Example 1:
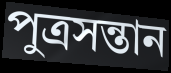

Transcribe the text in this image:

পুত্রসন্তান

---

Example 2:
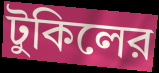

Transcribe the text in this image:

টুকিলের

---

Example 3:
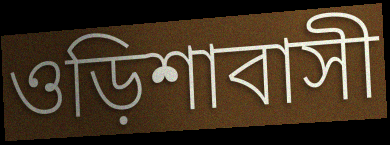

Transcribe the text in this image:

ওড়িশাবাসী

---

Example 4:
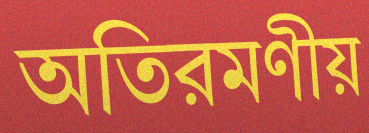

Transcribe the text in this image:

অতিরমণীয়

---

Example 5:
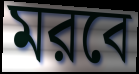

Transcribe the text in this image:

মরবে